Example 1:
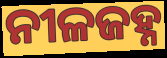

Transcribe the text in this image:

ନୀଳଜହ୍ନ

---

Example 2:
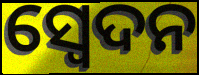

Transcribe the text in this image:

ସ୍ଵେଦନ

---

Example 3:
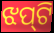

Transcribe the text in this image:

ଝପ୍‌ଟି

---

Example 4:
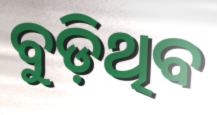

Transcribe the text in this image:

ବୁଡ଼ିଥିବ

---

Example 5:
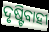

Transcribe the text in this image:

ଦୃଷ୍ଟିବାହୀ